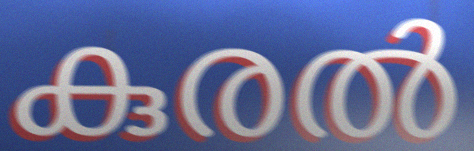
കുരൽ